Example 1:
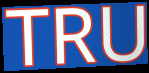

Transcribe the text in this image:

TRU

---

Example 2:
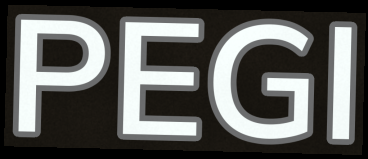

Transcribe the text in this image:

PEGI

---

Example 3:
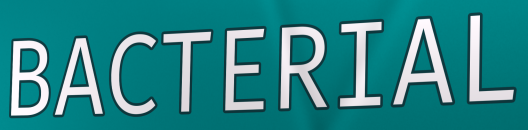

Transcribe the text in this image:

BACTERIAL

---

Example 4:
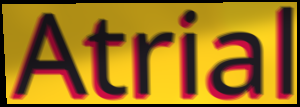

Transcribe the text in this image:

Atrial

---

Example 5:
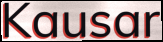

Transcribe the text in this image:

Kausar